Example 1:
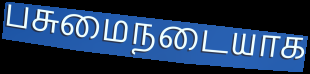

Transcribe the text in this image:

பசுமைநடையாக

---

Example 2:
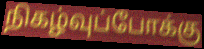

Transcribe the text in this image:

நிகழ்வுப்போக்கு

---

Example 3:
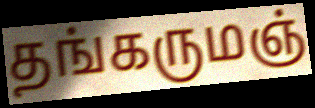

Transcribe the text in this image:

தங்கருமஞ்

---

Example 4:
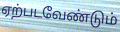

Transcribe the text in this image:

ஏற்படவேண்டும்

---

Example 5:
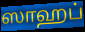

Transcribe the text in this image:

ஸாஹப்